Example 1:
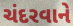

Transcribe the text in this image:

ચંદરવાને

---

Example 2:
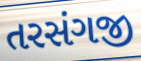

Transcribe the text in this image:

તરસંગજી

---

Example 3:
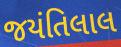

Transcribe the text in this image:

જયંતિલાલ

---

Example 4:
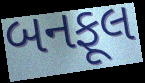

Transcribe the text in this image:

બનફૂલ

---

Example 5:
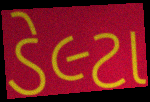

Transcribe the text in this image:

ડેલ્ટા